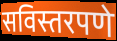
सविस्तरपणे